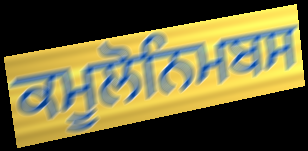
ਕਮੂਲੋਨਿਮਬਸ